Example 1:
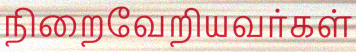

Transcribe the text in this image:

நிறைவேறியவர்கள்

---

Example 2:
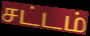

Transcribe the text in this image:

சட்டம்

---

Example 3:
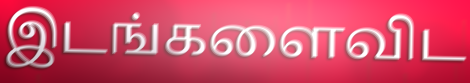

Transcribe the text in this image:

இடங்களைவிட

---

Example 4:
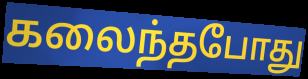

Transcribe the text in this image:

கலைந்தபோது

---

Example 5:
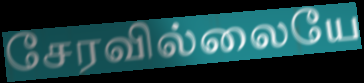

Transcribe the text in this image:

சேரவில்லையே